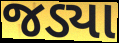
જડ્યા